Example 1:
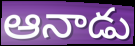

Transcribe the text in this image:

ఆనాడు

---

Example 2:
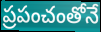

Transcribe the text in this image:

ప్రపంచంతోనే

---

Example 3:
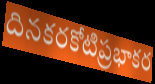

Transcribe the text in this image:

దినకరకోటిప్రభాకర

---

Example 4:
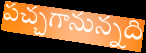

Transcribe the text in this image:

పచ్చగానున్నది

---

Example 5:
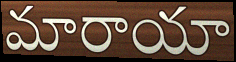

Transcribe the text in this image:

మారాయా